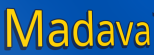
Madava